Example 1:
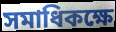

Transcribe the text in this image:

সমাধিকক্ষে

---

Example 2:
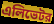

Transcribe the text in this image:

এলিভেটর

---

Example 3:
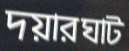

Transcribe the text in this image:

দয়ারঘাট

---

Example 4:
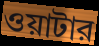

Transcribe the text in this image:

ওয়াটার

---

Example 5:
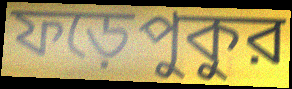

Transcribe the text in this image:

ফড়েপুকুর